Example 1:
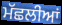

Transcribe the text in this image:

ਮੱਛਲੀਆਂ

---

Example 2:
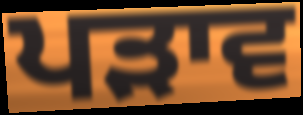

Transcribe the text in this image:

ਪੜਾਵ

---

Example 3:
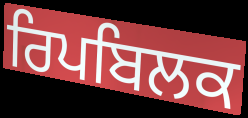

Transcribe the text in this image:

ਰਿਪਬਿਲਕ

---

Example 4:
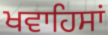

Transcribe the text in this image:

ਖਵਾਹਿਸਾਂ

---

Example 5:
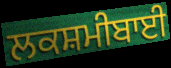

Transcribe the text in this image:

ਲਕਸ਼ਮੀਬਾਈ